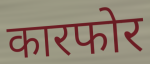
कारफोर